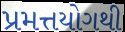
પ્રમત્તયોગથી